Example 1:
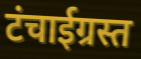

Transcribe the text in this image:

टंचाईग्रस्त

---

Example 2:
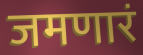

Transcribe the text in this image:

जमणारं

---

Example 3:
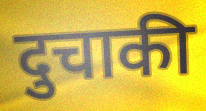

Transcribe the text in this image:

दुचाकी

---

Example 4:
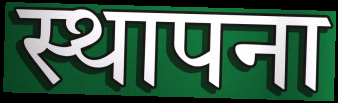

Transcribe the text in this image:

स्थापना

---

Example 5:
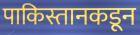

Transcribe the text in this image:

पाकिस्तानकडून